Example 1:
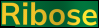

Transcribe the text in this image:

Ribose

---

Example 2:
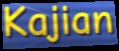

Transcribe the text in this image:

Kajian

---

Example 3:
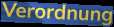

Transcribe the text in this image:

Verordnung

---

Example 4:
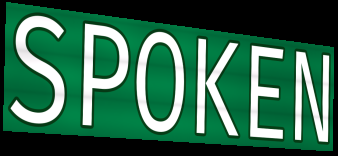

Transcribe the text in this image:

SPOKEN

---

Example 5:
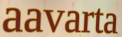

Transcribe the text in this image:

aavarta